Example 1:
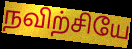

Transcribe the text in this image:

நவிற்சியே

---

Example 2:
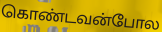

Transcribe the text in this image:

கொண்டவன்போல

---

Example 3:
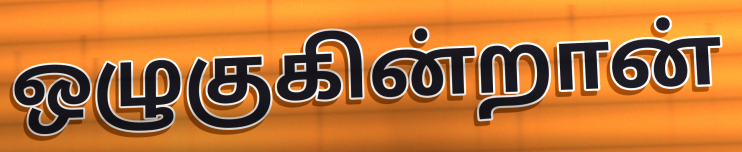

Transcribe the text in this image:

ஒழுகுகின்றான்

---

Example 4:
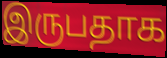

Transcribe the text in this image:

இருபதாக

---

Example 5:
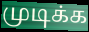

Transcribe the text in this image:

முடிக்க